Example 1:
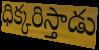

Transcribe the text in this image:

ధిక్కరిస్తాడు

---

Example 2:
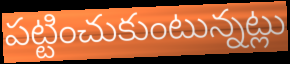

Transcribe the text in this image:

పట్టించుకుంటున్నట్లు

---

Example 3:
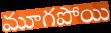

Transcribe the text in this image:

మూగపోయి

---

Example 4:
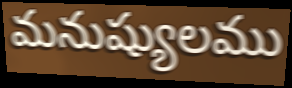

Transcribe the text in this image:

మనుష్యులము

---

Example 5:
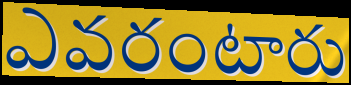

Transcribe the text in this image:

ఎవరంటారు